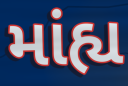
માંહ્ય